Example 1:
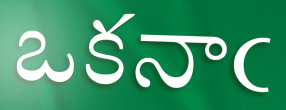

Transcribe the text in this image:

ఒకనాఁ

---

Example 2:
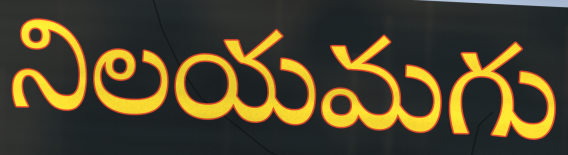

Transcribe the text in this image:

నిలయమగు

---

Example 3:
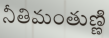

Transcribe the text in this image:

నీతిమంతుణ్ణి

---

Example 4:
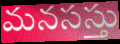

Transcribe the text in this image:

మనసస్తు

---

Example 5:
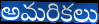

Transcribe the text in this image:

అమరికలు